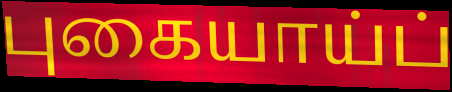
புகையாய்ப்